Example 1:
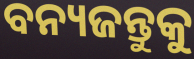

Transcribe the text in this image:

ବନ୍ୟଜନ୍ତୁକୁ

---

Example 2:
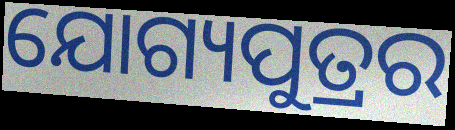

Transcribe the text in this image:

ଯୋଗ୍ୟପୁତ୍ରର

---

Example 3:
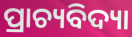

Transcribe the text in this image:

ପ୍ରାଚ୍ୟବିଦ୍ୟା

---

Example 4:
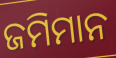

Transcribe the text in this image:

ଜମିମାନ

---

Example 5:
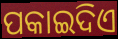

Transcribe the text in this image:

ପକାଇଦିଏ